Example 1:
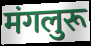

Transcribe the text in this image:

मंगलुरू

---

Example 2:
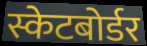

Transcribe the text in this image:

स्केटबोर्डर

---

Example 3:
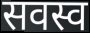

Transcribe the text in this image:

सवस्व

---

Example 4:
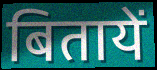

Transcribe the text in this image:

बितायें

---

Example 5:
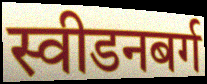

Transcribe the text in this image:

स्वीडनबर्ग